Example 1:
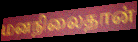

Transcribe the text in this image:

மனநிலைதான்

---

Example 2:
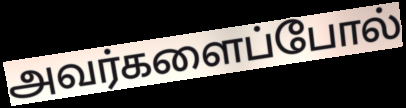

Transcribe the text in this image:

அவர்களைப்போல்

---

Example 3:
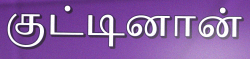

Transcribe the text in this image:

குட்டினான்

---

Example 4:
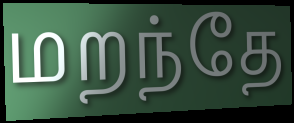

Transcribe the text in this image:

மறந்தே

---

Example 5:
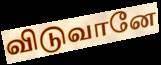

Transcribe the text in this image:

விடுவானே